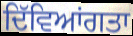
ਦਿੱਵਿਆਂਗਤਾ